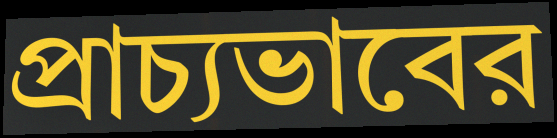
প্রাচ্যভাবের